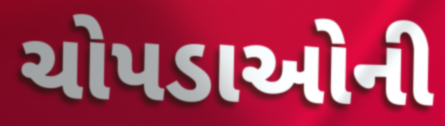
ચોપડાઓની